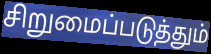
சிறுமைப்படுத்தும்